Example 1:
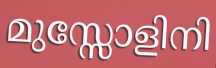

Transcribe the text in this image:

മുസ്സോളിനി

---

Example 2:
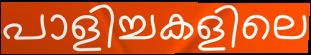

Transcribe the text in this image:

പാളിച്ചകളിലെ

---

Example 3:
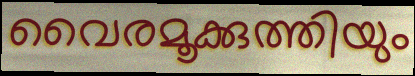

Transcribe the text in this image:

വൈരമൂക്കുത്തിയും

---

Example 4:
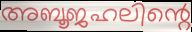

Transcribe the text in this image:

അബൂജഹലിന്റെ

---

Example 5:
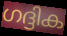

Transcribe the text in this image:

ഗദ്ദിക